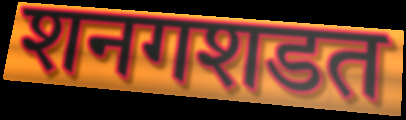
शनगशडत